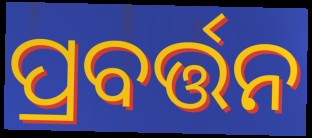
ପ୍ରବର୍ତ୍ତନ